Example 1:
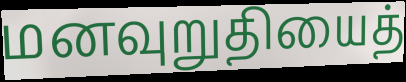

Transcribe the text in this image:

மனவுறுதியைத்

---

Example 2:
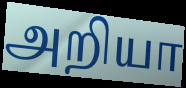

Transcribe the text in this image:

அறியா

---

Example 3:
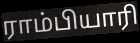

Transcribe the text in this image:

ராம்பியாரி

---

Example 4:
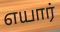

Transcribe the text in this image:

எயார்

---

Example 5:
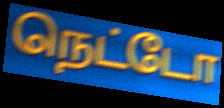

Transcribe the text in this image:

நெட்டோ